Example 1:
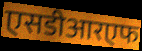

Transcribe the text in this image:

एसडीआरएफ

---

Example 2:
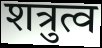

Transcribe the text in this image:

शत्रुत्व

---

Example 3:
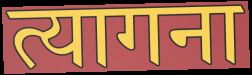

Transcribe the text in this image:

त्यागना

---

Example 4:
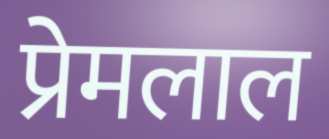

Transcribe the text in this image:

प्रेमलाल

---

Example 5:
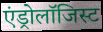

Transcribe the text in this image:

एंड्रोलॉजिस्ट